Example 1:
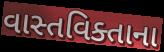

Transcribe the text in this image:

વાસ્તવિક્તાના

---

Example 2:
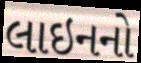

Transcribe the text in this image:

લાઇનનો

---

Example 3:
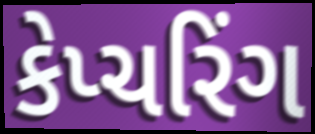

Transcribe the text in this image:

કેપ્ચરિંગ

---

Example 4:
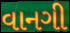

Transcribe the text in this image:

વાનગી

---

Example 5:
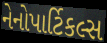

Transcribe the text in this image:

નેનોપાર્ટિકલ્સ